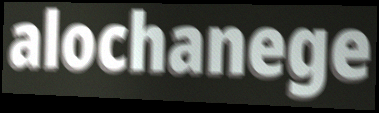
alochanege